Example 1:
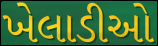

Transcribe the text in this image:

ખેલાડીઓ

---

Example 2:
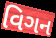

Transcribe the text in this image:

વિગન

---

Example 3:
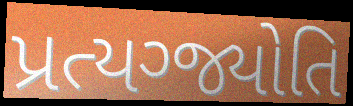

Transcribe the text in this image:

પ્રત્યગ્જ્યોતિ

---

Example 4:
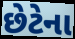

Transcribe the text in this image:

છેટેના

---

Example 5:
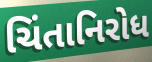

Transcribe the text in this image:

ચિંતાનિરોધ